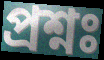
প্রশ্নঃ